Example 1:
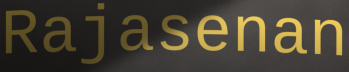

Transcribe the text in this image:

Rajasenan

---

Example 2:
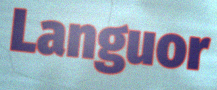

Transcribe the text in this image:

Languor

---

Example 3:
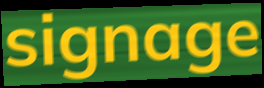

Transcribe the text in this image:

signage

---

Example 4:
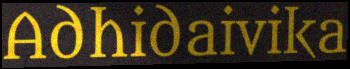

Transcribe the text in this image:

Adhidaivika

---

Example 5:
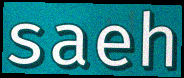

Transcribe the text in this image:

saeh